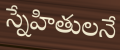
స్నేహితులనే